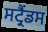
ਸਟ੍ਰੈਂਡਸ